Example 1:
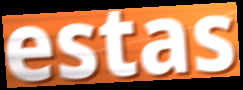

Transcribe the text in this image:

estas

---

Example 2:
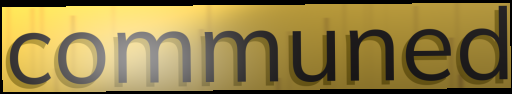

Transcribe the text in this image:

communed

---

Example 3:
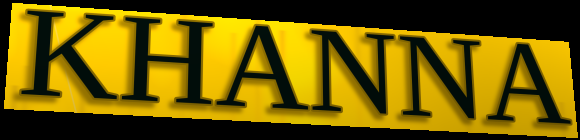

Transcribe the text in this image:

KHANNA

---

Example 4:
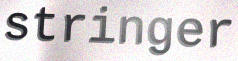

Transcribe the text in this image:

stringer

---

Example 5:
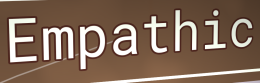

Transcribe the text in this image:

Empathic